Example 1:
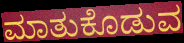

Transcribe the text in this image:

ಮಾತುಕೊಡುವ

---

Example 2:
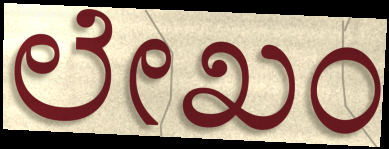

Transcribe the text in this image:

ಲೇಖಂ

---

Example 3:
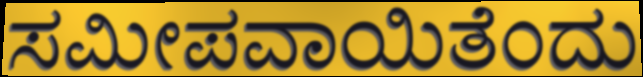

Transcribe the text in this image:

ಸಮೀಪವಾಯಿತೆಂದು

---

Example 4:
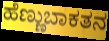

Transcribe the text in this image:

ಹೆಣ್ಣುಬಾಕತನ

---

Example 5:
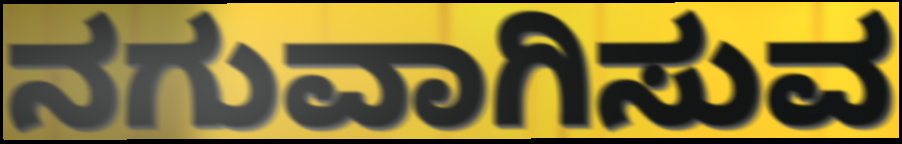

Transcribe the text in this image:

ನಗುವಾಗಿಸುವ